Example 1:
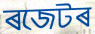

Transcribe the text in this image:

ৰজেটৰ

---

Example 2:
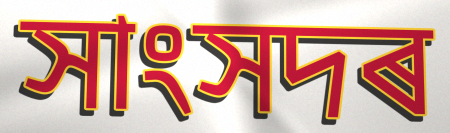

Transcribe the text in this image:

সাংসদৰ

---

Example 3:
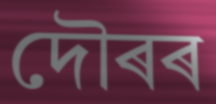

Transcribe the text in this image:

দৌৰৰ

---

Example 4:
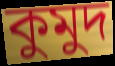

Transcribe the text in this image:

কুমুদ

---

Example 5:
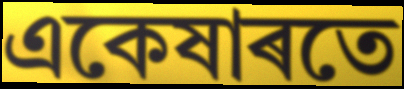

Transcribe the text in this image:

একেষাৰতে